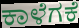
ಕಾಳೆಗಕೆ